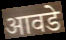
आवडे